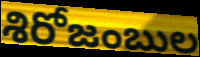
శిరోజంబుల